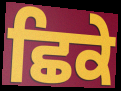
ਛਿਕੇ